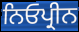
ਨਿਓਪ੍ਰੀਨ